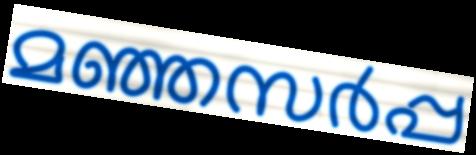
മഞ്ഞസർപ്പ